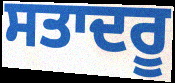
ਸਤਾਦਰੂ